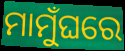
ମାମୁଁଘରେ